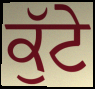
ਕੁੱਟੇ